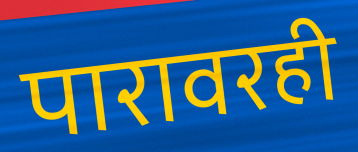
पारावरही